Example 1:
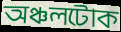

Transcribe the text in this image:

অঞ্চলটোক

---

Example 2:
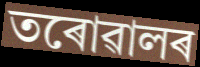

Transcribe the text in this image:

তৰোৱালৰ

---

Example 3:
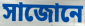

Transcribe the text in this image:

সাজোনে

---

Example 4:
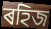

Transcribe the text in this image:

ৰহিজ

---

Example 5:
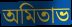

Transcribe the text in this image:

অমিতাভ